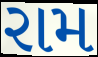
રામ